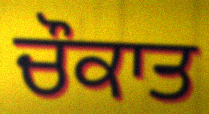
ਚੌਕਾਤ